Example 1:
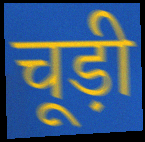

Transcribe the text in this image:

चूड़ी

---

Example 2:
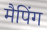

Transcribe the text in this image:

मैपिंग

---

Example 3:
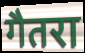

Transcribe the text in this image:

गैतरा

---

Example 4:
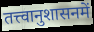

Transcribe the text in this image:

तत्त्वानुशासनमें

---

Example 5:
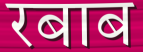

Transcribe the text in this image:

रबाब